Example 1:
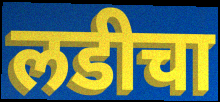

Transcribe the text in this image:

लडीचा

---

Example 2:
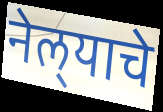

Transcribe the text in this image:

नेल्याचे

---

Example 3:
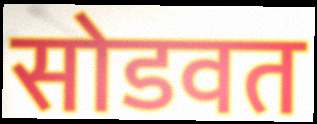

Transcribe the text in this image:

सोडवत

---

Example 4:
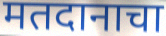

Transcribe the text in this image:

मतदानाचा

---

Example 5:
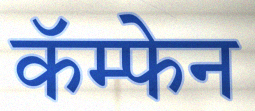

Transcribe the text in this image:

कॅम्फेन